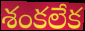
శంకలేక